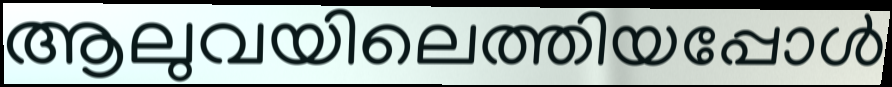
ആലുവയിലെത്തിയപ്പോൾ